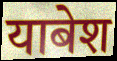
याबेश